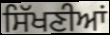
ਸਿੱਖਣੀਆਂ